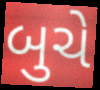
બુચે